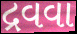
દ્રવવા